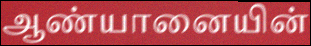
ஆண்யானையின்